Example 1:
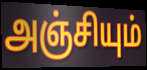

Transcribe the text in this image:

அஞ்சியும்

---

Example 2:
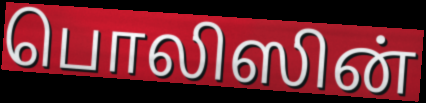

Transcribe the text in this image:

பொலிஸின்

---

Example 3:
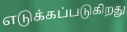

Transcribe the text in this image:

எடுக்கப்படுகிறது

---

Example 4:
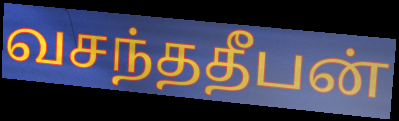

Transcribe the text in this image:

வசந்ததீபன்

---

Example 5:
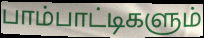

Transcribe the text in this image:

பாம்பாட்டிகளும்